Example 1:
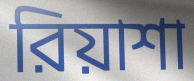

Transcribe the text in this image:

রিয়াশা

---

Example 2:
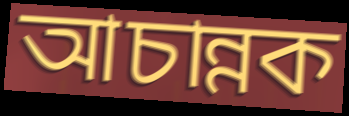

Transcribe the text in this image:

আচান্নক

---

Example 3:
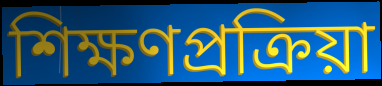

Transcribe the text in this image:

শিক্ষণপ্রক্রিয়া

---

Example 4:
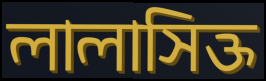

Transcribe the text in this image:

লালাসিক্ত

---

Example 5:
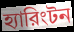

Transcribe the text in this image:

হ্যারিংটন